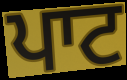
ਪਾਟ